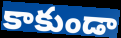
కాకుండా